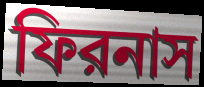
ফিরনাস